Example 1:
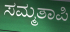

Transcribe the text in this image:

ಸಮ್ಮತಾಪಿ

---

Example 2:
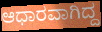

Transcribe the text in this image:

ಆಧಾರವಾಗಿದ್ದ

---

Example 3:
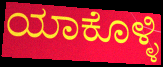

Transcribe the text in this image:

ಯಾಕೊಳ್ಳಿ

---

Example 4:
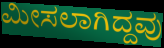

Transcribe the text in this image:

ಮೀಸಲಾಗಿದ್ದವು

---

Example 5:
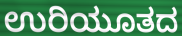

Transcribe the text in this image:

ಉರಿಯೂತದ